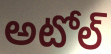
అటోల్